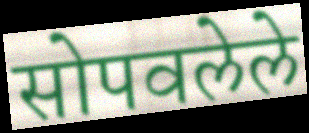
सोपवलेले